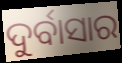
ଦୁର୍ବାସାର